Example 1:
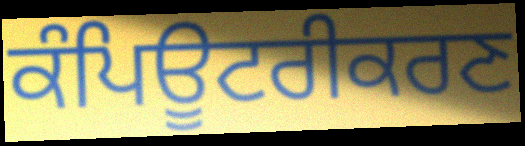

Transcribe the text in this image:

ਕੰਪਿਊਟਰੀਕਰਣ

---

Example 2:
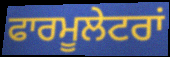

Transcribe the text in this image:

ਫਾਰਮੂਲੇਟਰਾਂ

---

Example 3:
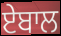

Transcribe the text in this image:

ਏਬਾਲ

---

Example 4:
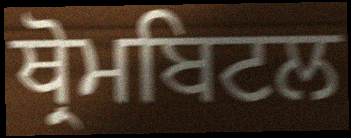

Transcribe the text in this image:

ਥ੍ਰੋਮਬਿਟਲ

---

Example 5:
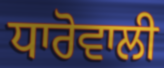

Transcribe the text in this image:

ਧਾਰੋਵਾਲੀ